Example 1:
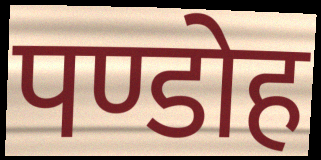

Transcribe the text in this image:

पण्डोह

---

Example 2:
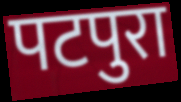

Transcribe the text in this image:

पटपुरा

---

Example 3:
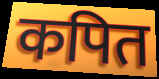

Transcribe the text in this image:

कपित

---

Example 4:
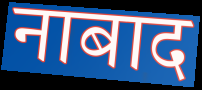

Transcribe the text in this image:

नाबाद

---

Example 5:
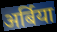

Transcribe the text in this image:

अर्बिया